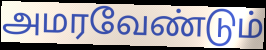
அமரவேண்டும்